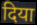
दिया